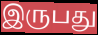
இருபது